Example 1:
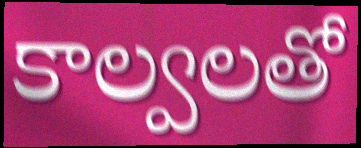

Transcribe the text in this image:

కాల్వలతో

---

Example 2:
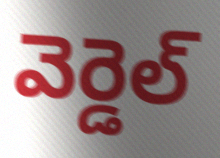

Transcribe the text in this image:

వెర్డెల్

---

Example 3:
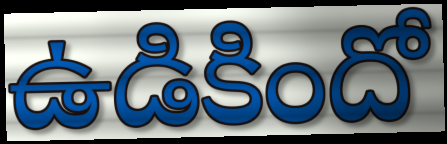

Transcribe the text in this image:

ఉడికిందో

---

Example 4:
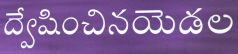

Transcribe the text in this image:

ద్వేషించినయెడల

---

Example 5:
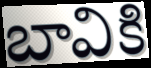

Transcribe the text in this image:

బావికి